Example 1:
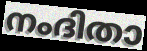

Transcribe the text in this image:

നംദിതാ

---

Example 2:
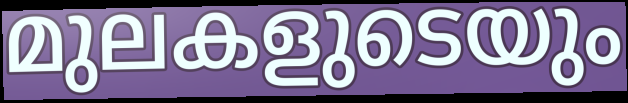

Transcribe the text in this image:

മുലകളുടെയും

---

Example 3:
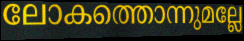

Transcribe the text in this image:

ലോകത്തൊന്നുമല്ലേ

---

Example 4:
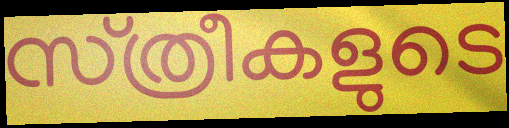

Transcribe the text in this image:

സ്‌ത്രീകളുടെ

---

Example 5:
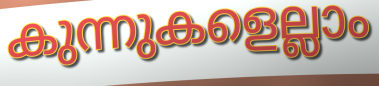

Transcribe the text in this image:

കുന്നുകളെല്ലാം